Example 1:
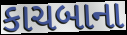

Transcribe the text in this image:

કાચબાના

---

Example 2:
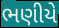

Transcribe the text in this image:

ભણીયે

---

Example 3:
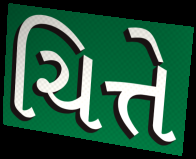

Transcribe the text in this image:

ચિત્તે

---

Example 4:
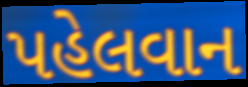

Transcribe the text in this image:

પહેલવાન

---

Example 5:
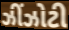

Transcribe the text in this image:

ઝીંઝોટી